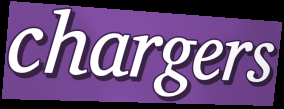
chargers